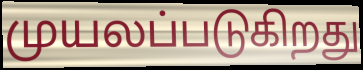
முயலப்படுகிறது